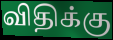
விதிக்கு